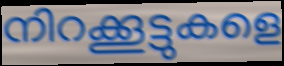
നിറക്കൂട്ടുകളെ